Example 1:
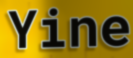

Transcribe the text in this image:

Yine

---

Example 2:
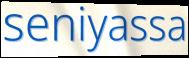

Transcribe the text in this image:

seniyassa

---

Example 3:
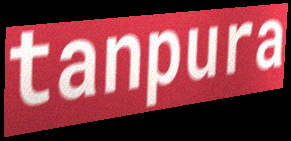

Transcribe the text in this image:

tanpura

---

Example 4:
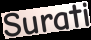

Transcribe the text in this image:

Surati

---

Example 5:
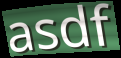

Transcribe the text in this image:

asdf